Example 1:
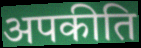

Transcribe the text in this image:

अपकीति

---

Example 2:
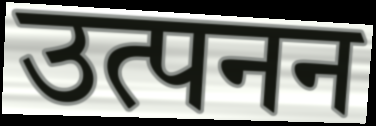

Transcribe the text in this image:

उत्पनन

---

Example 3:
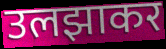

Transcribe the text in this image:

उलझाकर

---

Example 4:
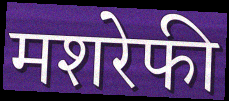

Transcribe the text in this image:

मशरेफी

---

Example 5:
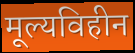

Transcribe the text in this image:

मूल्यविहीन